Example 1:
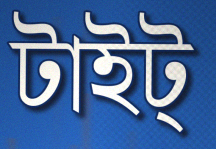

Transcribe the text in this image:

টাইট্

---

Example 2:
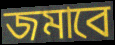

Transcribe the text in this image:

জমাবে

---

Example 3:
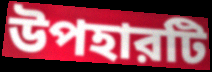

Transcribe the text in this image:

উপহারটি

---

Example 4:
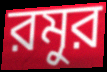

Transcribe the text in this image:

রমুর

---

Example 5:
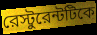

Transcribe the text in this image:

রেস্টুরেন্টটিকে